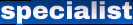
specialist